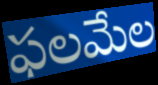
ఫలమేల